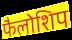
फैलोशिप